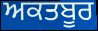
ਅਕਤਬੂਰ